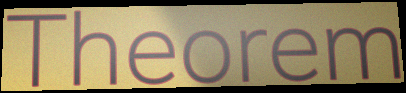
Theorem